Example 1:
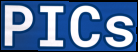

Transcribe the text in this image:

PICs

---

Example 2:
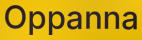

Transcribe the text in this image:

Oppanna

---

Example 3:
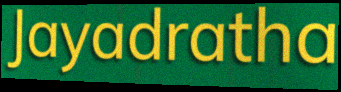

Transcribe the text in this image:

Jayadratha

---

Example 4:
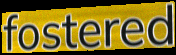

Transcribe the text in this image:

fostered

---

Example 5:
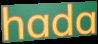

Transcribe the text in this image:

hada